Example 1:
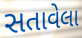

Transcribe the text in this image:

સતાવેલા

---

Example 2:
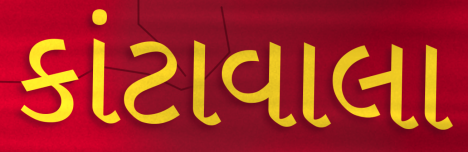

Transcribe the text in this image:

કાંટાવાલા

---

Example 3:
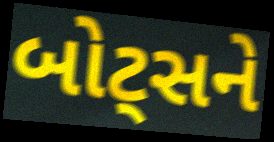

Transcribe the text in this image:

બોટ્સને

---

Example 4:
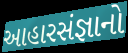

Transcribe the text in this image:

આહારસંજ્ઞાનો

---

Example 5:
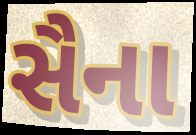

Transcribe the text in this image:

સૈના